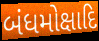
બંધમોક્ષાદિ